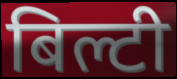
बिल्टी